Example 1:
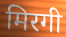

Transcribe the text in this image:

मिरगी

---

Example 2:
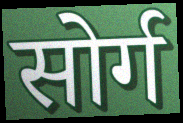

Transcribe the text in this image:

सोर्ग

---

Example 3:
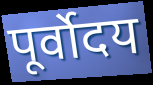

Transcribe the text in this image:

पूर्वोदय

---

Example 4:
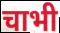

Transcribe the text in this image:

चाभी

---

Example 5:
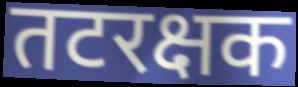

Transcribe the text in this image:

तटरक्षक